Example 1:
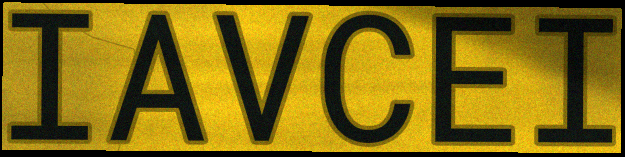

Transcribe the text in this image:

IAVCEI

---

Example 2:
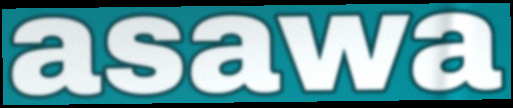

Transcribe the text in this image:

asawa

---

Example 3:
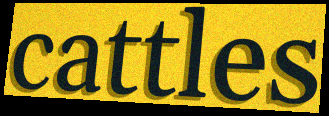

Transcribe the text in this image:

cattles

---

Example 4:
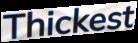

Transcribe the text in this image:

Thickest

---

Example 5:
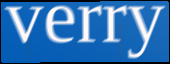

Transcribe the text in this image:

verry